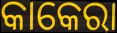
କାକେରା